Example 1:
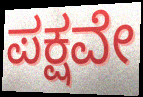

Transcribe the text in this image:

ಪಕ್ಷವೇ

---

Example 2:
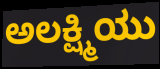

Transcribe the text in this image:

ಅಲಕ್ಷ್ಮಿಯು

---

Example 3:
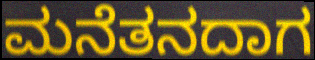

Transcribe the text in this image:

ಮನೆತನದಾಗ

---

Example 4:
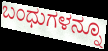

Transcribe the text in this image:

ಬಂಧುಗಳನ್ನೂ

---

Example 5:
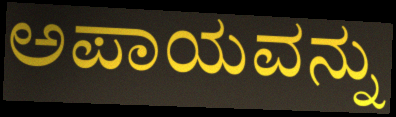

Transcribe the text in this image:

ಅಪಾಯವನ್ನು